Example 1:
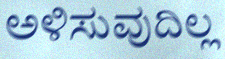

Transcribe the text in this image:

ಅಳಿಸುವುದಿಲ್ಲ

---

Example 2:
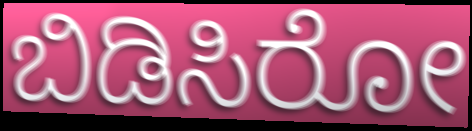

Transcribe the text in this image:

ಬಿಡಿಸಿರೋ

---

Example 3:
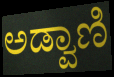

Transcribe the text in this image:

ಅಡ್ವಾಣಿ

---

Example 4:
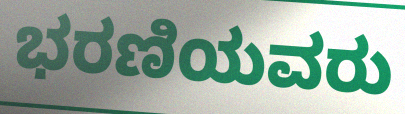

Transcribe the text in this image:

ಭರಣಿಯವರು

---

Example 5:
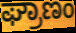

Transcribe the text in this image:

ಘ್ರಾಣಂ